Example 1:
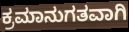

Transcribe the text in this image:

ಕ್ರಮಾನುಗತವಾಗಿ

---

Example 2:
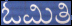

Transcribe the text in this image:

ಓಮಿತಿ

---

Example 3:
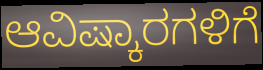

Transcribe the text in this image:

ಆವಿಷ್ಕಾರಗಳಿಗೆ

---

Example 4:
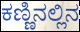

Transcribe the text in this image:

ಕಣ್ಣಿನಲ್ಲಿನ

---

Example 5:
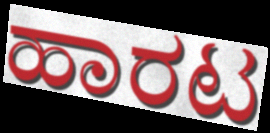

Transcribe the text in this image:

ಹಾರಟ